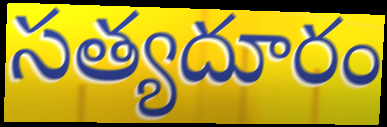
సత్యదూరం